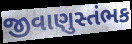
જીવાણુસ્તંભક